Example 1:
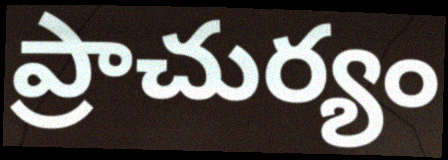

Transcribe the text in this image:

ప్రాచుర్యం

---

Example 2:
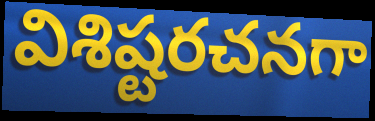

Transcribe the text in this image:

విశిష్టరచనగా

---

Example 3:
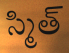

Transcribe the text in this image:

స్మిత్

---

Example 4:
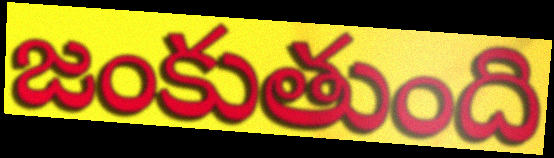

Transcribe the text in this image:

జంకుతుంది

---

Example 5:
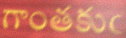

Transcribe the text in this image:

గాంతకుఁ